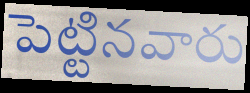
పెట్టినవారు